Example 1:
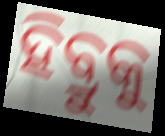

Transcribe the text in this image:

ହିବ୍ରୁକୁ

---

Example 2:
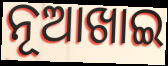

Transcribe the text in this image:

ନୂଆଖାଇ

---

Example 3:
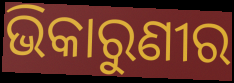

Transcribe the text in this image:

ଭିକାରୁଣୀର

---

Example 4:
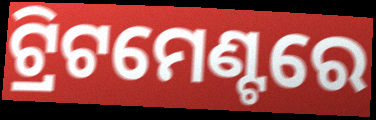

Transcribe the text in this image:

ଟ୍ରିଟମେଣ୍ଟରେ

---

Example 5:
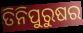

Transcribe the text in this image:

ତିନିପୁରୁଷର